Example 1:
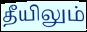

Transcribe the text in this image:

தீயிலும்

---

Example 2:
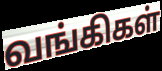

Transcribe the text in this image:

வங்கிகள்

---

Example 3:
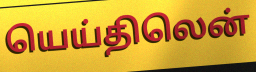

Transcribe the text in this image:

யெய்திலென்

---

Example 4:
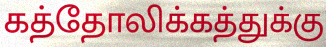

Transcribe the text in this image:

கத்தோலிக்கத்துக்கு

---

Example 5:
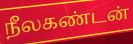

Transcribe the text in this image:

நீலகண்டன்